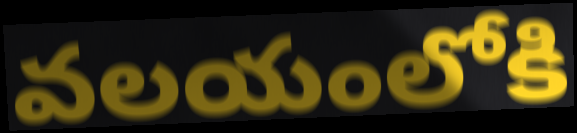
వలయంలోకి